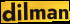
dilman